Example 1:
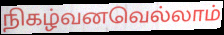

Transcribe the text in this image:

நிகழ்வனவெல்லாம்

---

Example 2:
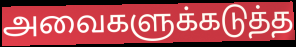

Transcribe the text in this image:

அவைகளுக்கடுத்த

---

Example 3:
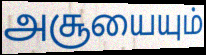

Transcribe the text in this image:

அசூயையும்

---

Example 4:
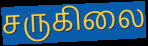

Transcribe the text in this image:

சருகிலை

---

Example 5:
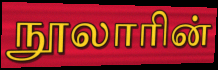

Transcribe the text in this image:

நூலாரின்